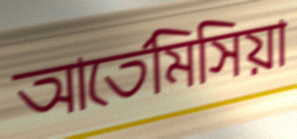
আর্তেমিসিয়া